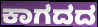
ಕಾಗದದ